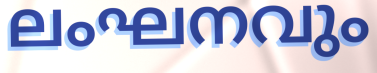
ലംഘനവും